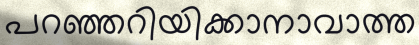
പറഞ്ഞറിയിക്കാനാവാത്ത